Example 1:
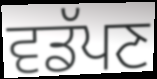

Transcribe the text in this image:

ਵਡੱਪਣ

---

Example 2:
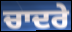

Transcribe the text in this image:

ਚਾਦਰੇ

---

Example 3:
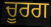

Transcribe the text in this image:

ਚੂਰਗ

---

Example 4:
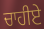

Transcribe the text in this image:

ਚਾਹੀਏ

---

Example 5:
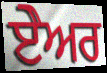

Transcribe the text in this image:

ਏੇਅਰ